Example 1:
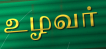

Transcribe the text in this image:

உழவர்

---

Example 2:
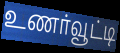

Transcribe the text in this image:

உணர்வூட்டி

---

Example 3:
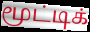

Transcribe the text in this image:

மூட்டிக்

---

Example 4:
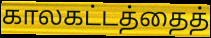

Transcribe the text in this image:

காலகட்டத்தைத்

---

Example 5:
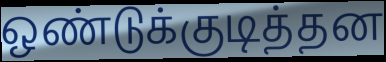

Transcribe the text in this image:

ஒண்டுக்குடித்தன